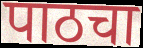
पाठचा